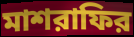
মাশরাফির